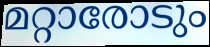
മറ്റാരോടും